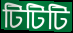
টিটিটি